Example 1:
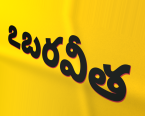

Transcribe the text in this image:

ఽబరవీత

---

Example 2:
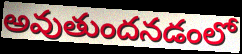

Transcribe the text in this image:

అవుతుందనడంలో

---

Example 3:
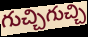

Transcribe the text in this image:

గుచ్చిగుచ్చి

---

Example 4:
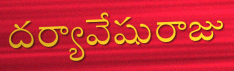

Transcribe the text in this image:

దర్యావేషురాజు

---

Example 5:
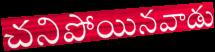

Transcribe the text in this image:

చనిపోయినవాడు